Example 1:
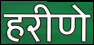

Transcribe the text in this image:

हरीणे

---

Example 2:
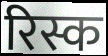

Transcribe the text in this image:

रिस्क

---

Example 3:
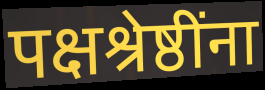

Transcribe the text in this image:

पक्षश्रेष्ठींना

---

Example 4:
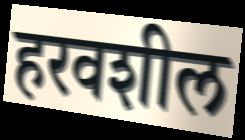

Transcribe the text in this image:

हरवशील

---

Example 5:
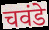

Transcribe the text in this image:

चवंडे